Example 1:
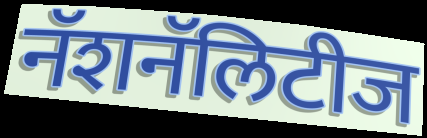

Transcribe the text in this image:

नॅशनॅलिटीज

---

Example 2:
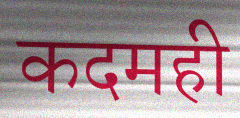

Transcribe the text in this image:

कदमही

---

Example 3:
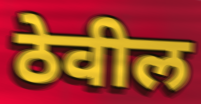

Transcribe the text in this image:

ठेवील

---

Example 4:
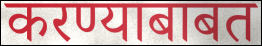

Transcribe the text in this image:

करण्याबाबत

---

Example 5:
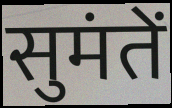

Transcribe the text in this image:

सुमंतें